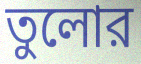
তুলোর